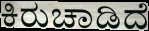
ಕಿರುಚಾಡಿದೆ